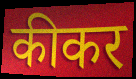
कीकर